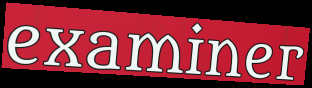
examiner